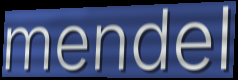
mendel